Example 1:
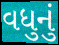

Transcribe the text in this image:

વધુનું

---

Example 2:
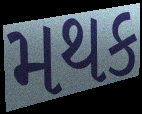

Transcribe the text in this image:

મથક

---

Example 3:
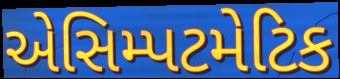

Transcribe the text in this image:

એસિમ્પટમેટિક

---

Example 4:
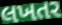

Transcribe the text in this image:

લખતર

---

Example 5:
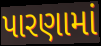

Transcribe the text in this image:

પારણામાં